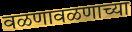
वळणावळणाच्या